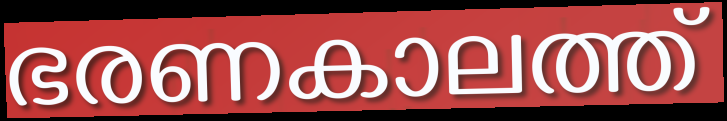
ഭരണകാലത്ത്